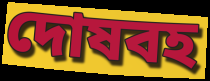
দোষবহ